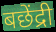
बछेंद्री